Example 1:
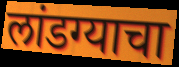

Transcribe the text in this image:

लांडग्याचा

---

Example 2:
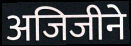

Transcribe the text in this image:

अजिजीने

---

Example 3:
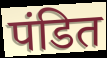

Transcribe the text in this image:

पंडित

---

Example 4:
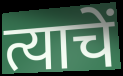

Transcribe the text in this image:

त्याचें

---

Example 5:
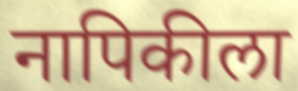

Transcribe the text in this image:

नापिकीला